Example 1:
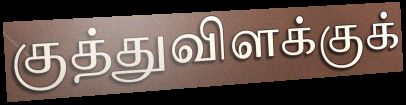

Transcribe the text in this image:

குத்துவிளக்குக்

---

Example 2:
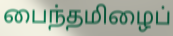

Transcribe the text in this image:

பைந்தமிழைப்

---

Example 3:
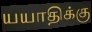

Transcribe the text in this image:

யயாதிக்கு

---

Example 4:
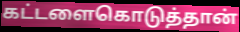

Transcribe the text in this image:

கட்டளைகொடுத்தான்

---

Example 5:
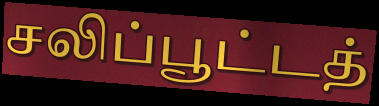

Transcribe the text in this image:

சலிப்பூட்டத்